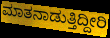
ಮಾತನಾಡುತ್ತಿದ್ದೀರಿ